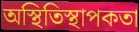
অস্থিতিস্থাপকতা